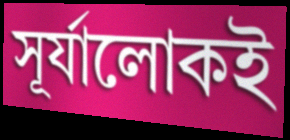
সূর্যালোকই